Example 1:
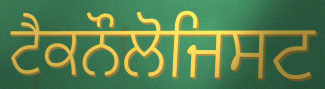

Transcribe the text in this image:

ਟੈਕਨੌਲੋਜਿਸਟ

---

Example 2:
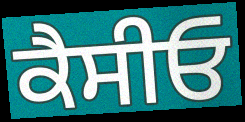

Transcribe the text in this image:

ਕੈਸੀਓ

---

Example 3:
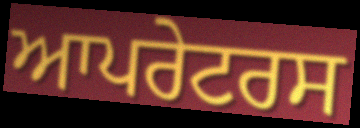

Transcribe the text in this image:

ਆਪਰੇਟਰਸ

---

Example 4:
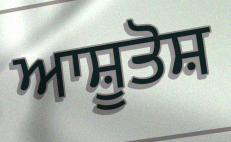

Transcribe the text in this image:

ਆਸ਼ੂਤੋਸ਼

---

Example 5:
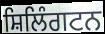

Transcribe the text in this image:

ਸ਼ਿਲਿੰਗਟਨ